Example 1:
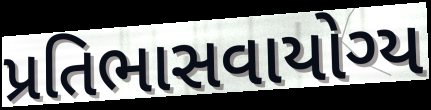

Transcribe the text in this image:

પ્રતિભાસવાયોગ્ય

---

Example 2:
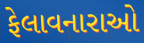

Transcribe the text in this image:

ફેલાવનારાઓ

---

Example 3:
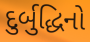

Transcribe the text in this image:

દુર્બુદ્ધિનો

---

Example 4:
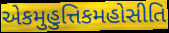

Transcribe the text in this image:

એકમુહુત્તિકમહોસીતિ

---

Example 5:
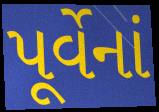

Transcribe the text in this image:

પૂર્વેનાં